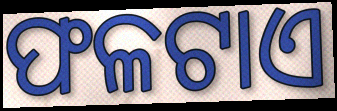
ଫଳଟାଏ